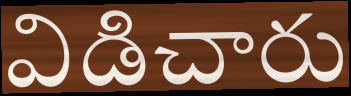
విడిచారు